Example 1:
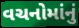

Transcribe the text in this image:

વચનોમાંનું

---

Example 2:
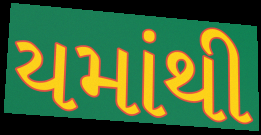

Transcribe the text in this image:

યમાંથી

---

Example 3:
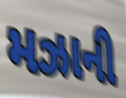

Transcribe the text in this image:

મઝાની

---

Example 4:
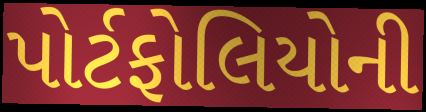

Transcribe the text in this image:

પોર્ટફોલિયોની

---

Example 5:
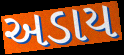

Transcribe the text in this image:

અડાય